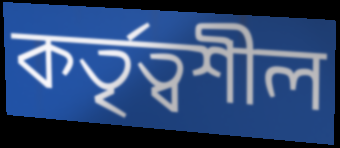
কৰ্তৃত্বশীল